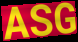
ASG